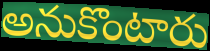
అనుకొంటారు